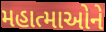
મહાત્માઓને